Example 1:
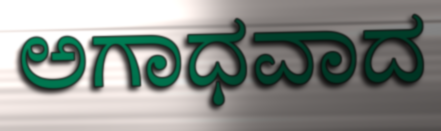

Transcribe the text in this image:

ಅಗಾಧವಾದ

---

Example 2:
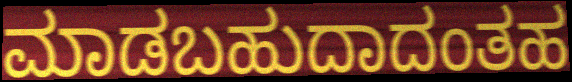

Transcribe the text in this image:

ಮಾಡಬಹುದಾದಂತಹ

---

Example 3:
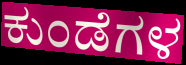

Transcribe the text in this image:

ಕುಂಡೆಗಳ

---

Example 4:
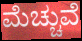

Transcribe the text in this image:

ಮೆಚ್ಚುವೆ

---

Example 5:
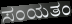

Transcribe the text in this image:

ಸಂಯತಂ